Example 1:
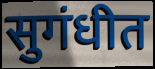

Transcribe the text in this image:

सुगंधीत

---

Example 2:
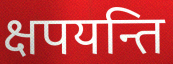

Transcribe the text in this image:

क्षपयन्ति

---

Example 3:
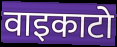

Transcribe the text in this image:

वाइकाटो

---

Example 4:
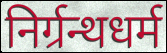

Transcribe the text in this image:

निर्ग्रन्थधर्म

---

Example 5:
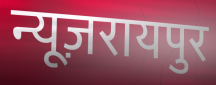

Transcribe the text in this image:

न्यूज़रायपुर